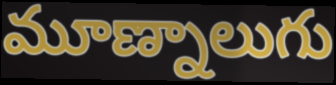
మూణ్నాలుగు